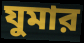
যুমার